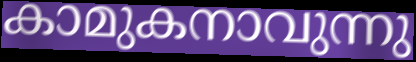
കാമുകനാവുന്നു